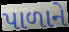
પાળાને